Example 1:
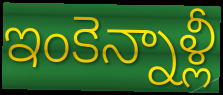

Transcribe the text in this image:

ఇంకెన్నాళ్లీ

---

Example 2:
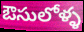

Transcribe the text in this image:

ఔసులోళ్ళ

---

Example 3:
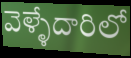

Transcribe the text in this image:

వెళ్ళేదారిలో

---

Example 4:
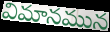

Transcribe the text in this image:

విమానమున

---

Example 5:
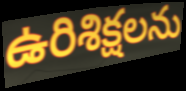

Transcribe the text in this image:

ఉరిశిక్షలను